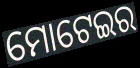
ମୋଟେଇର